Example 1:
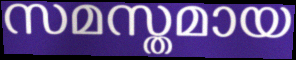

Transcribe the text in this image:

സമസ്തമായ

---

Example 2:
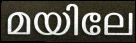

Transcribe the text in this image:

മയിലേ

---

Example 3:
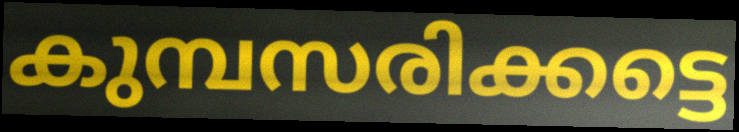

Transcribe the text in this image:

കുമ്പസരിക്കട്ടെ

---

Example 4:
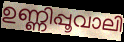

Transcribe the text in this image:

ഉണ്ണിപ്പൂവാലി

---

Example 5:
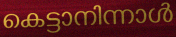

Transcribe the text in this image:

കെട്ടാനിന്നാൾ